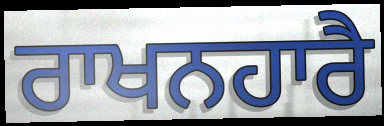
ਰਾਖਨਹਾਰੈ